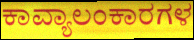
ಕಾವ್ಯಾಲಂಕಾರಗಳ